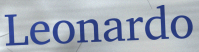
Leonardo